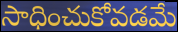
సాధించుకోవడమే